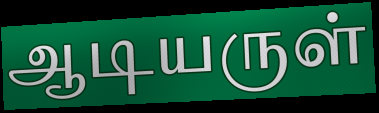
ஆடியருள்